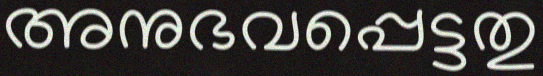
അനുഭവപ്പെട്ടതു